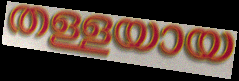
തള്ളയായ